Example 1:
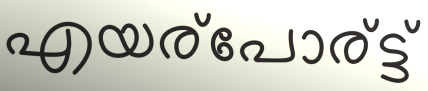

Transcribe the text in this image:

എയര്പോര്ട്ട്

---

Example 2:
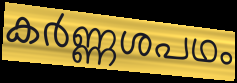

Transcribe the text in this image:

കർണ്ണശപഥം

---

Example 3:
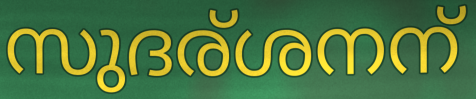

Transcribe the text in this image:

സുദര്ശനന്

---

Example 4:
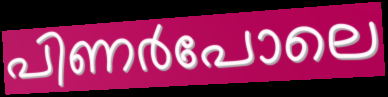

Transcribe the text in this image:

പിണർപോലെ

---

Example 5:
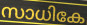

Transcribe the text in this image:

സാധികേ